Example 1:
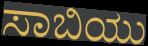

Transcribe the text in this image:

ಸಾಬಿಯು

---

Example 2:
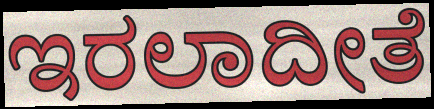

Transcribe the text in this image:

ಇರಲಾದೀತೆ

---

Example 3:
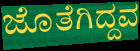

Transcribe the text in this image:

ಜೊತೆಗಿದ್ದವ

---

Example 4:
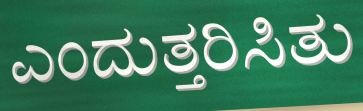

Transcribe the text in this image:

ಎಂದುತ್ತರಿಸಿತು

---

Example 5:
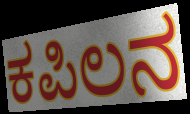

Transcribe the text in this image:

ಕಪಿಲನ